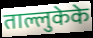
ताल्लुकेके